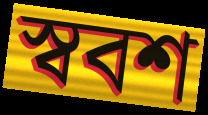
স্ববশ